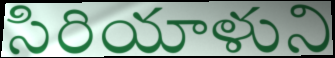
సిరియాళుని